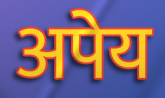
अपेय